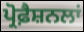
ਪ੍ਰੋਫ਼ੈਸ਼ਨਲਾਂ